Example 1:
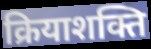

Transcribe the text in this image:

क्रियाशक्ति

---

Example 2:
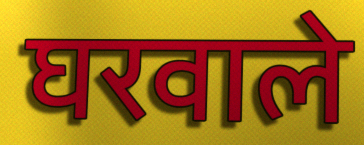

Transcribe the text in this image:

घरवाले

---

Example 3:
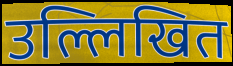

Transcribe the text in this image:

उल्लिखित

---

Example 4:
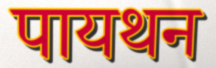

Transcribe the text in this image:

पायथन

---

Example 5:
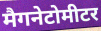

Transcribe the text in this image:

मैगनेटोमीटर